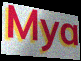
Mya